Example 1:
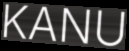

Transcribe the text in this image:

KANU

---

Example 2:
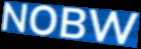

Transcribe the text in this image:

NOBW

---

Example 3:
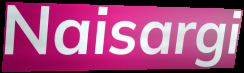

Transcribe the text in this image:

Naisargi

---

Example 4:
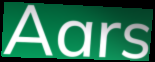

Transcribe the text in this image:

Aars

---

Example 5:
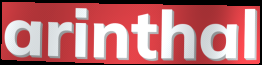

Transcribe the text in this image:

arinthal